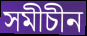
সমীচীন